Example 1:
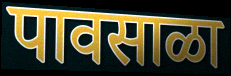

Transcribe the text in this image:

पावसाळा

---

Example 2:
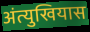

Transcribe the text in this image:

अंत्युखियास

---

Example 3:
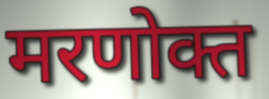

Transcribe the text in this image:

मरणोक्त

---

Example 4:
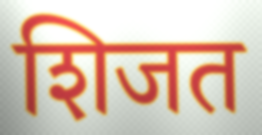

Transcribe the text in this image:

शिजत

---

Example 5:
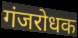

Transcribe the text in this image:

गंजरोधक